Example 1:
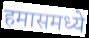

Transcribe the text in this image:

हमासमध्ये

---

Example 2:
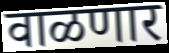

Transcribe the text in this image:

वाळणार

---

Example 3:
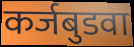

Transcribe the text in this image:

कर्जबुडवा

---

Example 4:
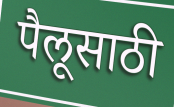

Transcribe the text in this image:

पैलूसाठी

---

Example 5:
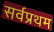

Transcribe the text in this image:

सर्वप्रथम